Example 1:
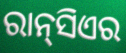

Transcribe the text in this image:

ରାନ୍‌ସିଏର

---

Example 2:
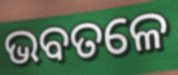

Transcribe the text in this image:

ଭବତଳେ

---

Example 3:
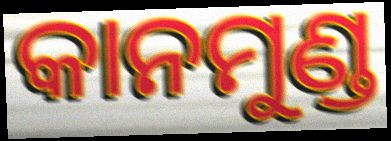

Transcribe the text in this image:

କାନମୁଣ୍ଡ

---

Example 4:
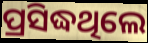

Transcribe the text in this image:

ପ୍ରସିଦ୍ଧଥିଲେ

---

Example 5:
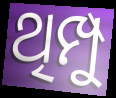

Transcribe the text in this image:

ଥିମ୍ପୁ